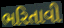
ભરિતાવી